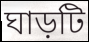
ঘাড়টি